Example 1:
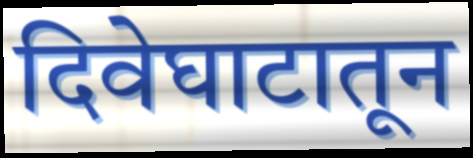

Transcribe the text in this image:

दिवेघाटातून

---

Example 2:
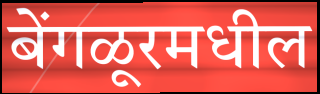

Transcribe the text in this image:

बेंगळूरमधील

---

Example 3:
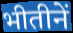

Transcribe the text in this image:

भीतीनें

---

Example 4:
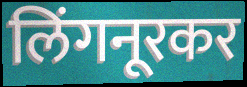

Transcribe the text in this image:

लिंगनूरकर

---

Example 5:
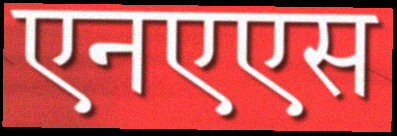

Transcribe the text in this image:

एनएएस